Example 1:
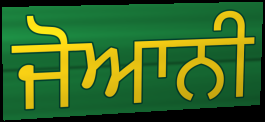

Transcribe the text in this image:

ਜੋਆਨੀ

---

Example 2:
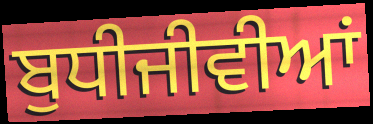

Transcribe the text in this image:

ਬੁਧੀਜੀਵੀਆਂ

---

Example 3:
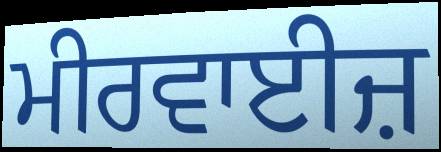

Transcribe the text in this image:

ਮੀਰਵਾਈਜ਼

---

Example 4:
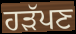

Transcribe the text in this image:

ਹੜੱਪਣ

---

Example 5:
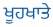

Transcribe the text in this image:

ਖੂਹਖਾਤੇ